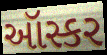
ઑસ્કર